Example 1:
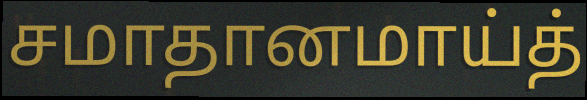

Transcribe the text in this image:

சமாதானமாய்த்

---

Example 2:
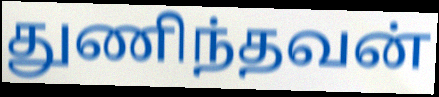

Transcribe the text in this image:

துணிந்தவன்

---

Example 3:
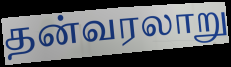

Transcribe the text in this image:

தன்வரலாறு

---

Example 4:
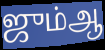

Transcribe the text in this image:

ஜும்ஆ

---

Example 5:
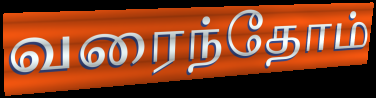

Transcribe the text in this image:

வரைந்தோம்